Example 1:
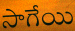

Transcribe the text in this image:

సాగేయి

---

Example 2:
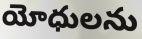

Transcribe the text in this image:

యోధులను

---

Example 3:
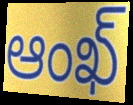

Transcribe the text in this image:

ఆంఖ్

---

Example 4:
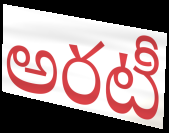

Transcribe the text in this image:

అరటీ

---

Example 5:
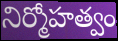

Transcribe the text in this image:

నిర్మోహత్వం